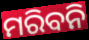
ମରିବନି